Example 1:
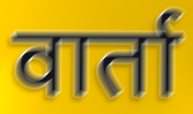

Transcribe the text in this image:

वार्ता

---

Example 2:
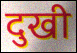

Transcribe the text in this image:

दुखी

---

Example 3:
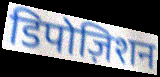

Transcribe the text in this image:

डिपोज़िशन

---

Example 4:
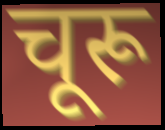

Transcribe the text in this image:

चूरू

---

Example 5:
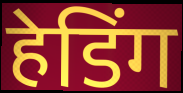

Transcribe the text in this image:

हेडिंग